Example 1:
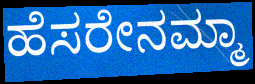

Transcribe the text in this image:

ಹೆಸರೇನಮ್ಮಾ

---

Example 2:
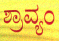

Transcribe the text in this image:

ಶ್ರಾವ್ಯಂ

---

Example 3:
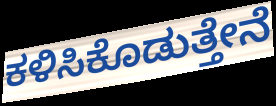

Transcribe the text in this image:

ಕಳಿಸಿಕೊಡುತ್ತೇನೆ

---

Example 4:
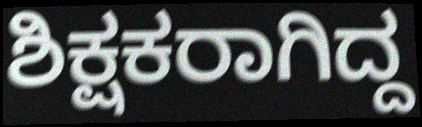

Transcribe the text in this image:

ಶಿಕ್ಷಕರಾಗಿದ್ದ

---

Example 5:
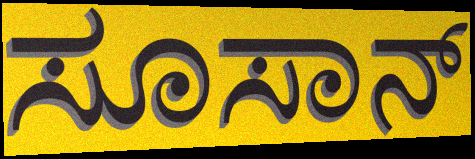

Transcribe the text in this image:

ಸೂಸಾನ್